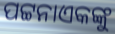
ପଟ୍ଟନାଏକଙ୍କୁ